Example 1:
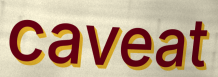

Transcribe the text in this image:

caveat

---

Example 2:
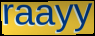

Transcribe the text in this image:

raayy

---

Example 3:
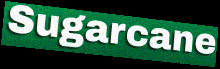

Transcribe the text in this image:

Sugarcane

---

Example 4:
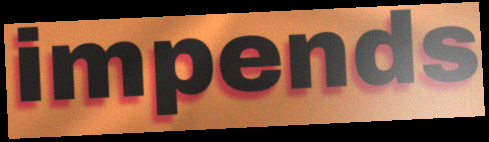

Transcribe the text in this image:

impends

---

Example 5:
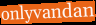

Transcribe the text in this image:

onlyvandan